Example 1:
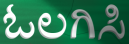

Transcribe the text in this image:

ಓಲಗಿಸಿ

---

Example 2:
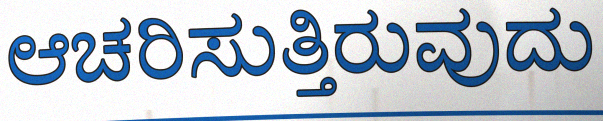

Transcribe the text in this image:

ಆಚರಿಸುತ್ತಿರುವುದು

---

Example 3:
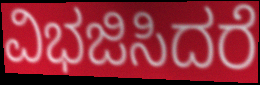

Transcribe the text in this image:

ವಿಭಜಿಸಿದರೆ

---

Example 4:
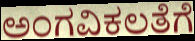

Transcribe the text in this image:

ಅಂಗವಿಕಲತೆಗೆ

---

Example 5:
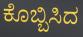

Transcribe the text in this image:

ಕೊಬ್ಬಿಸಿದ